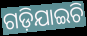
ଗଡ଼ିଯାଇଚି